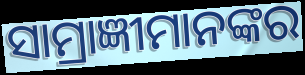
ସାମ୍ରାଜ୍ଞୀମାନଙ୍କର